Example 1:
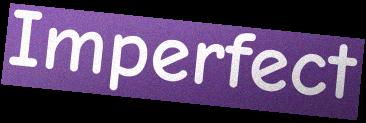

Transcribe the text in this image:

Imperfect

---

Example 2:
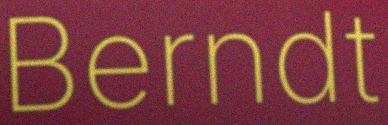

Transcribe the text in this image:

Berndt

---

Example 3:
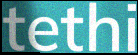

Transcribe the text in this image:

tethi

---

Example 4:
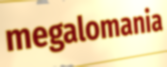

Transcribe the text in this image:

megalomania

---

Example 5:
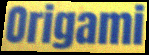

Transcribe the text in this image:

Origami